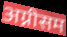
अग्नीसम